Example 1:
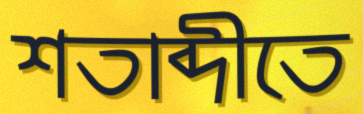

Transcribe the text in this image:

শতাব্দীতে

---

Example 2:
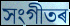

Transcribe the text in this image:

সংগীতৰ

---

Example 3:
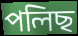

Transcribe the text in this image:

পলিছ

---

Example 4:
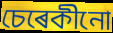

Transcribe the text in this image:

চেৰেকীনো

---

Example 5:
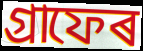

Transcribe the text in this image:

গ্ৰাফেৰ